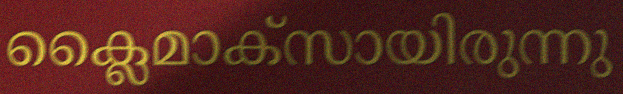
ക്ലൈമാക്സായിരുന്നു